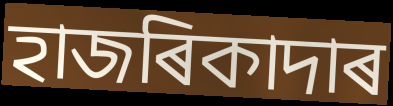
হাজৰিকাদাৰ